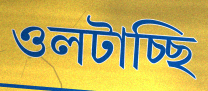
ওলটাচ্ছি